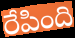
రేపింది